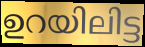
ഉറയിലിട്ട